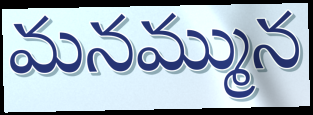
మనమ్మున